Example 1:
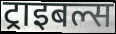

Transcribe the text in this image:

ट्राइबल्स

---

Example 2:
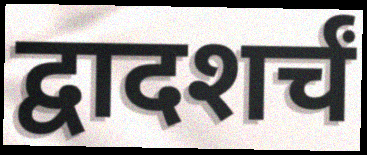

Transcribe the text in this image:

द्वादशर्चं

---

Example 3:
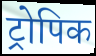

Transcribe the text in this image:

ट्रोपिक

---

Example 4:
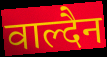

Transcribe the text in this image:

वाल्दैन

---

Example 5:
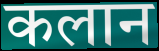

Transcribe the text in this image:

कलान